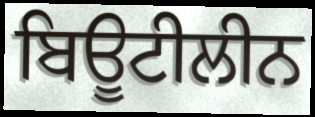
ਬਿਊਟੀਲੀਨ